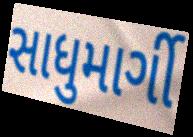
સાધુમાર્ગી